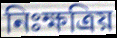
নিঃক্ষত্রিয়